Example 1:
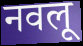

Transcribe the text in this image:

नवलू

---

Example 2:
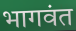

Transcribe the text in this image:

भागवंत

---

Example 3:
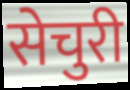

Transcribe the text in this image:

सेचुरी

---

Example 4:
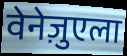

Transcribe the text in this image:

वेनेज़ुएला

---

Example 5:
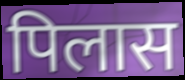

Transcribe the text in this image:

पिलास